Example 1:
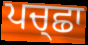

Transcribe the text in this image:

ਪਚ੍ਛਾ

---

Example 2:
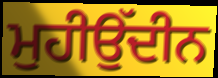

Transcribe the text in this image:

ਮੁਹੀਉੱਦੀਨ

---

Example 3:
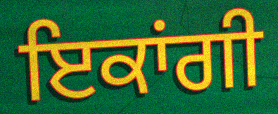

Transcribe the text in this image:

ਇਕਾਂਗੀ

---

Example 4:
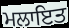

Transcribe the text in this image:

ਮਲਾਇਤ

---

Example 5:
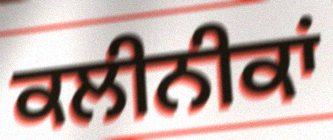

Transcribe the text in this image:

ਕਲੀਨੀਕਾਂ